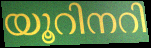
യൂറിനറി